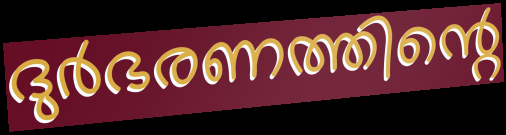
ദുർഭരണത്തിന്റെ